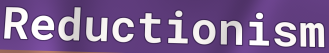
Reductionism